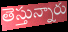
తెస్తున్నారు